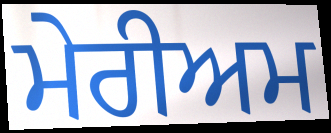
ਮੇਰੀਅਮ